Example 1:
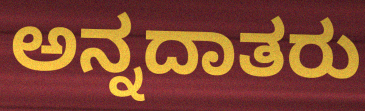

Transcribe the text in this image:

ಅನ್ನದಾತರು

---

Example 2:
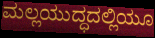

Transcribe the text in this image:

ಮಲ್ಲಯುದ್ಧದಲ್ಲಿಯೂ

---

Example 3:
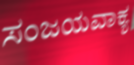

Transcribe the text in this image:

ಸಂಜಯವಾಕ್ಯ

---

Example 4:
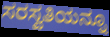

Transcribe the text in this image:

ಸರಸ್ವತಿಯನ್ನೂ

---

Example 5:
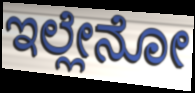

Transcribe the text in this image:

ಇಲ್ಲೇನೋ